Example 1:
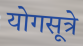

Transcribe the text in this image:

योगसूत्रे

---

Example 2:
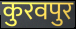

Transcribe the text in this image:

कुरवपुर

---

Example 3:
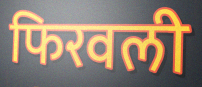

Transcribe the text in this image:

फिरवली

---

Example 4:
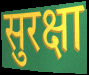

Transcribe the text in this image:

सुरक्षा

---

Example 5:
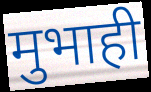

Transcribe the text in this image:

मुभाही